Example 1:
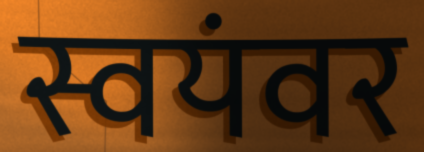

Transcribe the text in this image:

स्वयंवर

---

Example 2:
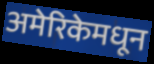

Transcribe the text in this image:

अमेरिकेमधून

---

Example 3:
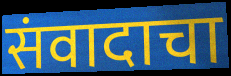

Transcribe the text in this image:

संवादाचा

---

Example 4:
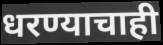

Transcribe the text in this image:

धरण्याचाही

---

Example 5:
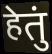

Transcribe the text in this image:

हेतुं